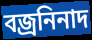
বজ্রনিনাদ